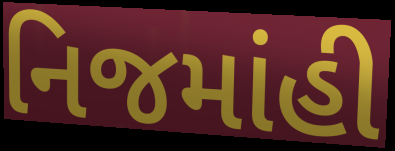
નિજમાંહી